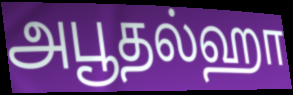
அபூதல்ஹா